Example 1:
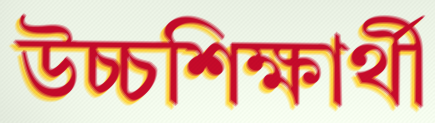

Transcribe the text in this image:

উচ্চশিক্ষার্থী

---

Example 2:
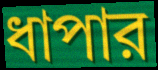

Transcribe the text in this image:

ধাপার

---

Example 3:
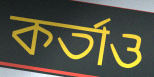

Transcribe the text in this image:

কর্তাও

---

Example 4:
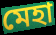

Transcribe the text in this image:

মেহা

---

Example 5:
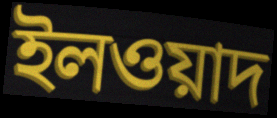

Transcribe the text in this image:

ইলওয়াদ